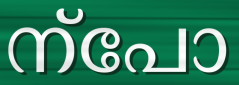
ന്പോ